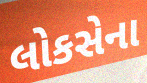
લોકસેના